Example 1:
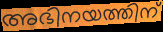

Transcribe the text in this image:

അഭിനയത്തിന്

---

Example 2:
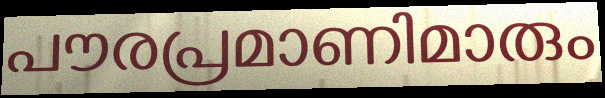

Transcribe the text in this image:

പൗരപ്രമാണിമാരും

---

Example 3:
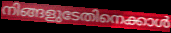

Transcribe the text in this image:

നിങ്ങളുടേതിനെക്കാൾ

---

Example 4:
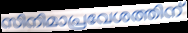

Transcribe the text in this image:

സിനിമാപ്രവേശത്തിന്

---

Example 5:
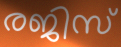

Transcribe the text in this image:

രജിസ്